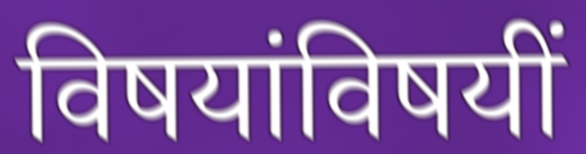
विषयांविषयीं